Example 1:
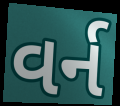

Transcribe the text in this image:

વર્ન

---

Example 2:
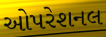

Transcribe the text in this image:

ઓપરેશનલ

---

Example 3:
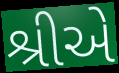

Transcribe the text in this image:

શ્રીએ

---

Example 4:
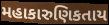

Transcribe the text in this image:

મહાકારુણિકતાય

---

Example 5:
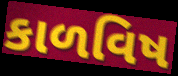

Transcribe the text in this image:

કાળવિષ